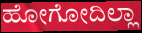
ಹೋಗೋದಿಲ್ಲಾ